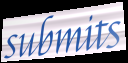
submits